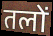
तलों